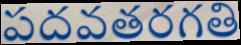
పదవతరగతి